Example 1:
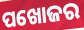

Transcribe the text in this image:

ପଖୋଜର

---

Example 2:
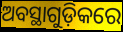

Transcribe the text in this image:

ଅବସ୍ଥାଗୁଡ଼ିକରେ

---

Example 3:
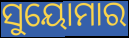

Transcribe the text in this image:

ସୁୟୋମାର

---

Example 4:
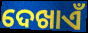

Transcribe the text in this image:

ଦେଖାଏଁ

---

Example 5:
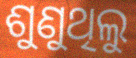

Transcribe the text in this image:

ଶୁଣୁଥିଲୁ